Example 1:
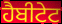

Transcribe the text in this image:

ਹੈਬੀਟੇਟ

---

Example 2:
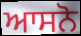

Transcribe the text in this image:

ਆਸਨੋ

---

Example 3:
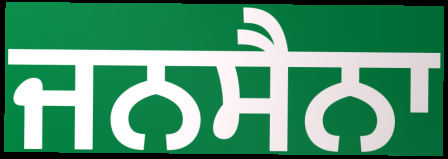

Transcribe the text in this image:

ਜਨਸੈਨਾ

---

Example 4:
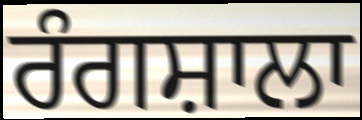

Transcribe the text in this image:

ਰੰਗਸ਼ਾਲਾ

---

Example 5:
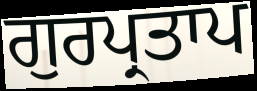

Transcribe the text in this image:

ਗੁਰਪ੍ਰਤਾਪ